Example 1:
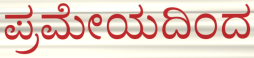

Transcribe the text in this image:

ಪ್ರಮೇಯದಿಂದ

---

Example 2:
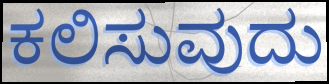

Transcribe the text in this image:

ಕಲಿಸುವುದು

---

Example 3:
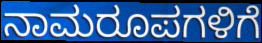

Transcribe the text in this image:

ನಾಮರೂಪಗಳಿಗೆ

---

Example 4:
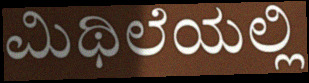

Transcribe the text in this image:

ಮಿಥಿಲೆಯಲ್ಲಿ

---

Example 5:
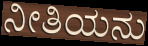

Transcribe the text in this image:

ನೀತಿಯನು